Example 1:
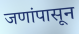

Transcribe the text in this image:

जणांपासून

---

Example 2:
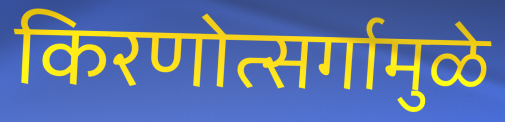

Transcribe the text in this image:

किरणोत्सर्गामुळे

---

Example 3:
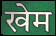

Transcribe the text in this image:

खेम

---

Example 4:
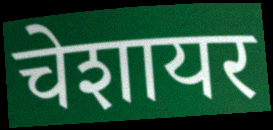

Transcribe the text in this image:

चेशायर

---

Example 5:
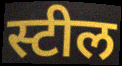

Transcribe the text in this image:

स्टील